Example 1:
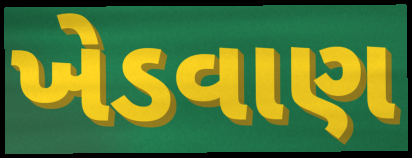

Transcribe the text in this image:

ખેડવાણ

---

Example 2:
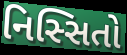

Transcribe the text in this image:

નિસ્સિતો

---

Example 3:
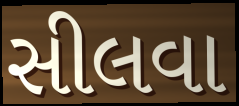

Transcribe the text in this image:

સીલવા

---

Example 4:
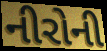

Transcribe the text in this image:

નીરોની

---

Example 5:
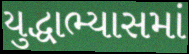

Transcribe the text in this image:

યુદ્ધાભ્યાસમાં